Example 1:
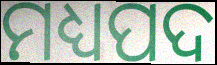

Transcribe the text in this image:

ମଧ୍ୟପଦ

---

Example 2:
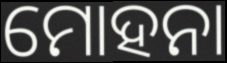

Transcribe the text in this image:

ମୋହନା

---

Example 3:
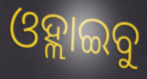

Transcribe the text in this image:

ଓହ୍ଲାଇବୁ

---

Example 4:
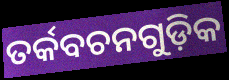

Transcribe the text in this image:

ତର୍କବଚନଗୁଡ଼ିକ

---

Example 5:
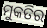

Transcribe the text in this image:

ମୁକତିର